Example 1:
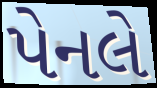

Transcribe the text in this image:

પેનલે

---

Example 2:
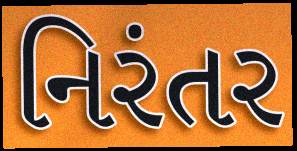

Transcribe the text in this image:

નિરંતર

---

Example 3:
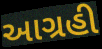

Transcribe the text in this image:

આગ્રહી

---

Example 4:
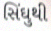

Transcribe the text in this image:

સિંઘુથી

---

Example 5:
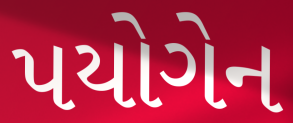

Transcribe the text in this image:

પયોગેન